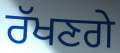
ਰੱਖਣਗੇ